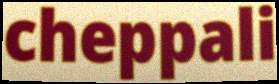
cheppali